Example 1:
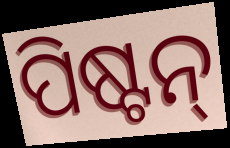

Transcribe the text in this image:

ପିଷ୍ଟନ୍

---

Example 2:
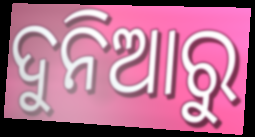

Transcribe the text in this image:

ଦୁନିଆରୁ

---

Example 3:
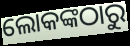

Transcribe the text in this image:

ଲୋକଙ୍କଠାରୁ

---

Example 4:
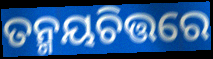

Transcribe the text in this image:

ତନ୍ମୟଚିତ୍ତରେ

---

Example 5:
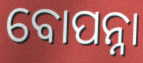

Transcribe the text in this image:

ବୋପନ୍ନା